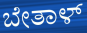
ಬೇತಾಳ್